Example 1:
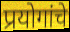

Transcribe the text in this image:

प्रयोगांचे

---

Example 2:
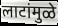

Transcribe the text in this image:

लाटांमुळे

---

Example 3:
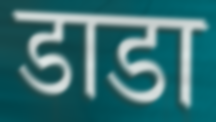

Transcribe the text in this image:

डाडा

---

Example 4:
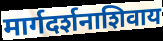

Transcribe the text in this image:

मार्गदर्शनाशिवाय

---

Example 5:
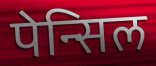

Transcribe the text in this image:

पेन्सिल